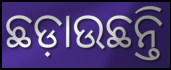
ଛଡ଼ାଉଛନ୍ତି